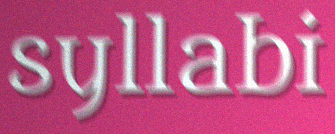
syllabi